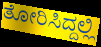
ತೋರಿಸಿದ್ದಲ್ಲಿ